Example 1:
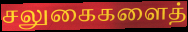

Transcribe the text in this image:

சலுகைகளைத்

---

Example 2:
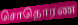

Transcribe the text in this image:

சொதொரண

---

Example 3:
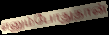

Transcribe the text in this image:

எனும்போதுதான்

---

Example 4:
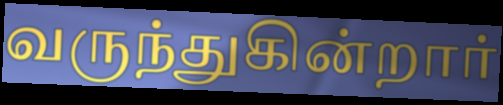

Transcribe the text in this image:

வருந்துகின்றார்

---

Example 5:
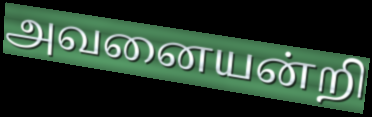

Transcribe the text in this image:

அவனையன்றி